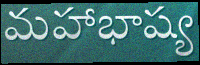
మహాభాష్య